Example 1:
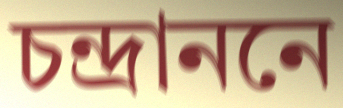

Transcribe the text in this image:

চন্দ্রাননে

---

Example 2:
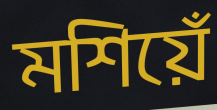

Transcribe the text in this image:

মশিয়েঁ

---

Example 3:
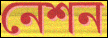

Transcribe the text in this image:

নেশন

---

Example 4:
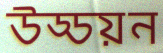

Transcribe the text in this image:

উড্ডয়ন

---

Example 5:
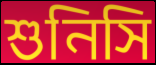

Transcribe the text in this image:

শুনিসি